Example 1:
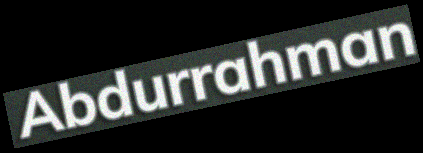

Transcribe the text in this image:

Abdurrahman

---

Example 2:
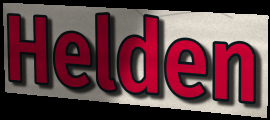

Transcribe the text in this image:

Helden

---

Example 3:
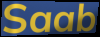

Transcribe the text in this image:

Saab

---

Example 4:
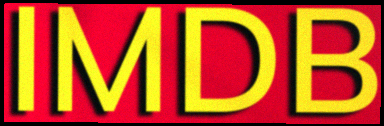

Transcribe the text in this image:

IMDB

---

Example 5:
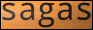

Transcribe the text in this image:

sagas